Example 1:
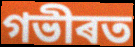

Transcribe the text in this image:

গভীৰত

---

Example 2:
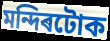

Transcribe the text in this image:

মন্দিৰটোক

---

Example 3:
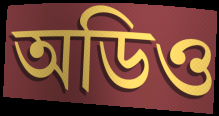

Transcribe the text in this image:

অডিও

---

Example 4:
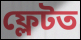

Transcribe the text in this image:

ফ্লেটত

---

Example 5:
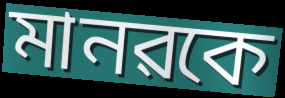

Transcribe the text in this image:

মানৱকে